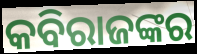
କବିରାଜଙ୍କର